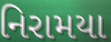
નિરામયા